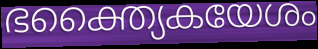
ഭക്ത്യൈകയേശം